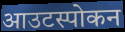
आउटस्पोकन